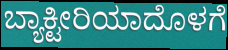
ಬ್ಯಾಕ್ಟೀರಿಯಾದೊಳಗೆ